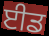
ਈਡ